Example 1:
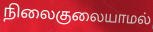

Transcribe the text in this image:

நிலைகுலையாமல்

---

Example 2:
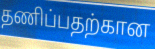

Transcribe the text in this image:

தணிப்பதற்கான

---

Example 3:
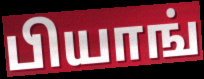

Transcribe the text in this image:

பியாங்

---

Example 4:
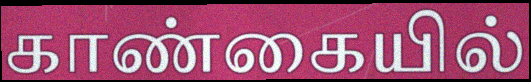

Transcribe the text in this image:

காண்கையில்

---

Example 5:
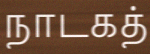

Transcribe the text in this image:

நாடகத்